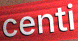
centi